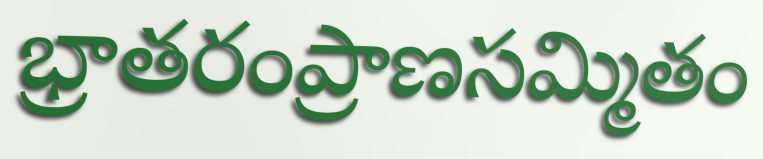
భ్రాతరంప్రాణసమ్మితం